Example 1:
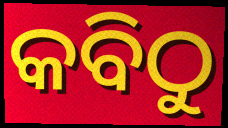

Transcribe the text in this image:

କବିଠୁ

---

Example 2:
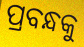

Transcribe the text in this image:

ପ୍ରବନ୍ଧକୁ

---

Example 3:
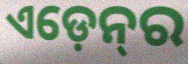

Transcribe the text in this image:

ଏଡ଼େନ୍‍ର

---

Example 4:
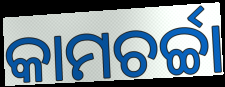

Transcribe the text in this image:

କାମଚର୍ଚ୍ଚା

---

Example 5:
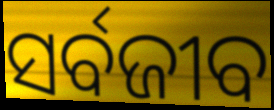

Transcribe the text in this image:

ସର୍ବଜୀବ